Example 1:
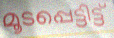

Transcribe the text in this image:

മൂടപ്പെട്ടിട്ട്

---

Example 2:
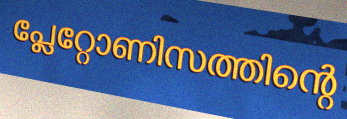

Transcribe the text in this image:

പ്ലേറ്റോണിസത്തിന്റെ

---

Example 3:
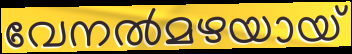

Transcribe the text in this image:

വേനൽമഴയായ്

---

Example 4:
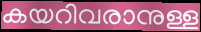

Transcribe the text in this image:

കയറിവരാനുള്ള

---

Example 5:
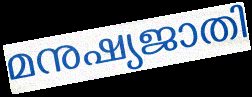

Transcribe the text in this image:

മനുഷ്യജാതി